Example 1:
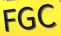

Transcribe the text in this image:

FGC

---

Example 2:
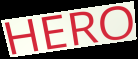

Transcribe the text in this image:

HERO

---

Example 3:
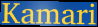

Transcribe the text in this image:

Kamari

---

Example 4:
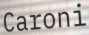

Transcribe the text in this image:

Caroni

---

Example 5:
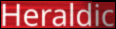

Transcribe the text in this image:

Heraldic